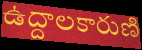
ఉద్దాలకారుణి